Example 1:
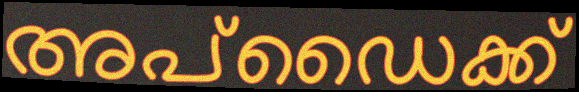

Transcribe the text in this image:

അപ്ഡൈക്ക്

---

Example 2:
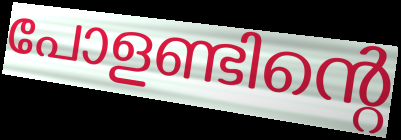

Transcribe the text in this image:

പോളണ്ടിന്റെ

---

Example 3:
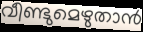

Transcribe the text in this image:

വീണ്ടുമെഴുതാൻ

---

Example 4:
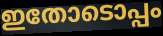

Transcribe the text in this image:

ഇതോടൊപ്പം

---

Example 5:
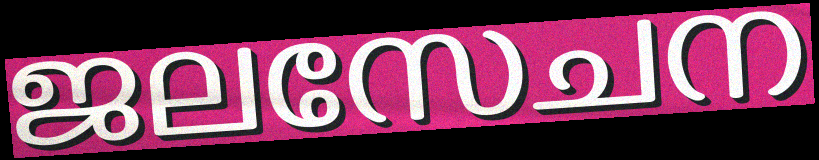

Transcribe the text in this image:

ജലസേചന